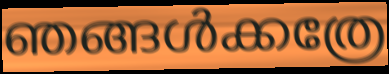
ഞങ്ങൾക്കത്രേ